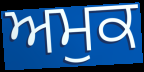
ਅਮੁਕ